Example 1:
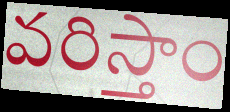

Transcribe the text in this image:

వరిస్తాం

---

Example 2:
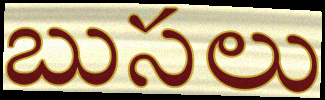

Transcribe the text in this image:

బుసలు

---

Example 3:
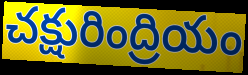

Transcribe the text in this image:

చక్షురింద్రియం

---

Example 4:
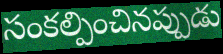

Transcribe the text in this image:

సంకల్పించినప్పుడు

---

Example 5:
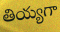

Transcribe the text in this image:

తియ్యగా